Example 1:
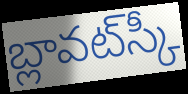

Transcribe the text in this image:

బ్లావట్‌స్కీ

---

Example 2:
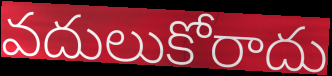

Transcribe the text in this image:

వదులుకోరాదు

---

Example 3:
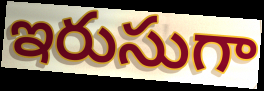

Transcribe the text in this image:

ఇరుసుగా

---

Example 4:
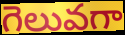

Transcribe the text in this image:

గెలువగా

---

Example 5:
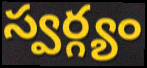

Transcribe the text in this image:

స్వర్గ్యం